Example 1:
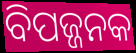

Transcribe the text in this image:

ବିପଜ୍ଜନକ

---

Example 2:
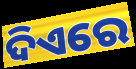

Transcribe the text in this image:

ଦିଏରେ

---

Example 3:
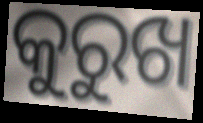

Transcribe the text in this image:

କୁରୁଖ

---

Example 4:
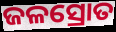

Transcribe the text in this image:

ଜଳସ୍ରୋତ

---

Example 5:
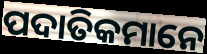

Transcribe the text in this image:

ପଦାତିକମାନେ